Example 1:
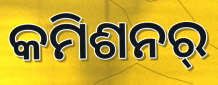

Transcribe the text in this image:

କମିଶନର୍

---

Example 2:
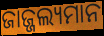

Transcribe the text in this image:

ଜାଜ୍ଜଲ୍ୟମାନ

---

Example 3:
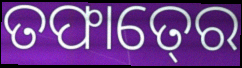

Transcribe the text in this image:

ତଫାତ୍‍ରେ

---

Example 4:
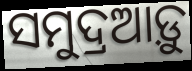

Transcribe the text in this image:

ସମୁଦ୍ରଆଡ଼ୁ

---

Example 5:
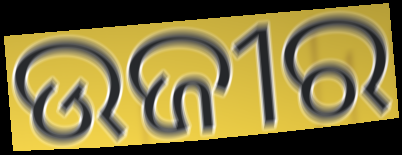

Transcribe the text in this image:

ଉଜୀର